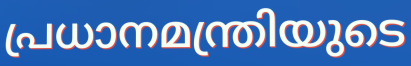
പ്രധാനമന്ത്രിയുടെ